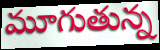
మూగుతున్న